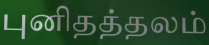
புனிதத்தலம்